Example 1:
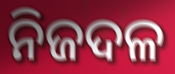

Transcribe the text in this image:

ନିଜଦଳ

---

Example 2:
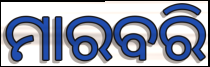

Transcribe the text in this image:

ମାରବରି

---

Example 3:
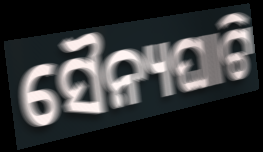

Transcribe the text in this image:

ସୈନ୍ୟଘାଟି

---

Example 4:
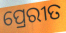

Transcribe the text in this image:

ପ୍ରେରୀତ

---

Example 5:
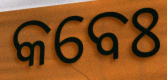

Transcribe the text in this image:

କବେଃ